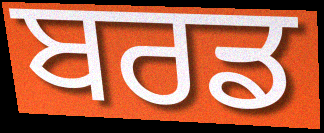
ਬਰਡ